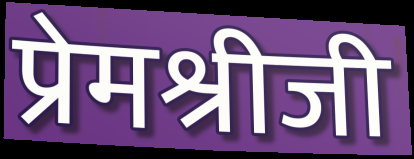
प्रेमश्रीजी